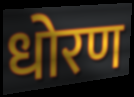
धोरण